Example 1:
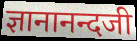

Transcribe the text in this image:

ज्ञानानन्दजी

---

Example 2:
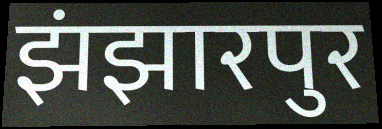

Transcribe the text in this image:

झंझारपुर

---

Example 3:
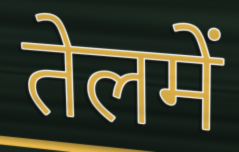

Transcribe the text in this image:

तेलमें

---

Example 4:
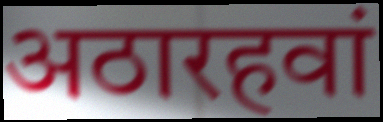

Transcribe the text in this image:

अठारहवां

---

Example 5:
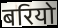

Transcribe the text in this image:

बरियो